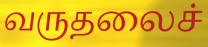
வருதலைச்